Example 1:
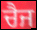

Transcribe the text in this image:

ਚੈਜ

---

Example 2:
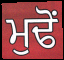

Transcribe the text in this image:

ਮੁਢੋਂ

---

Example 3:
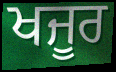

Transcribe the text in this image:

ਖਜੂਰ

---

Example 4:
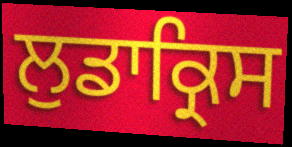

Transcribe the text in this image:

ਲੁਡਾਕ੍ਰਿਸ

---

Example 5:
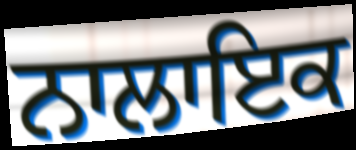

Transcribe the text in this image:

ਨਾਲਾਇਕ